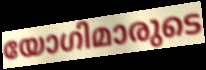
യോഗിമാരുടെ